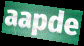
aapde